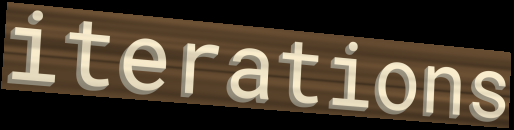
iterations